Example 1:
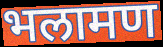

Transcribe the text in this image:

भलामण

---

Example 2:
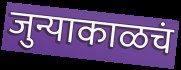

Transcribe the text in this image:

जुन्याकाळचं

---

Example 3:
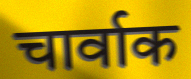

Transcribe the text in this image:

चार्वाक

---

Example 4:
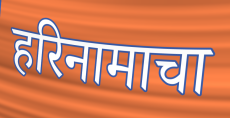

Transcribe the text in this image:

हरिनामाचा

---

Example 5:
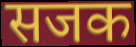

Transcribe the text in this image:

सजक